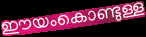
ഈയംകൊണ്ടുള്ള